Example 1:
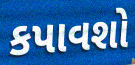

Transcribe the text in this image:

કપાવશો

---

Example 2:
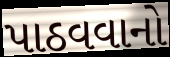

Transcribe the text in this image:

પાઠવવાનો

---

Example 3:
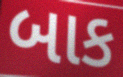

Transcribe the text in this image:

બાક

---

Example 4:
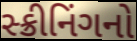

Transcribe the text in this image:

સ્ક્રીનિંગનો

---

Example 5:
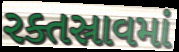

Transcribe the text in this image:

રક્તસ્રાવમાં